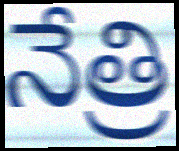
నేత్రి